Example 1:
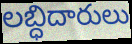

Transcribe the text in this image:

లబ్ధిదారులు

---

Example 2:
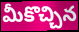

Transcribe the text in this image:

మీకొచ్చిన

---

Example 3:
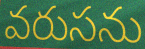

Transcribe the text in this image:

వరుసను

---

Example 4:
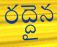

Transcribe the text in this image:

రద్దైన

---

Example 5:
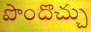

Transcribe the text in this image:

పొందొచ్చు